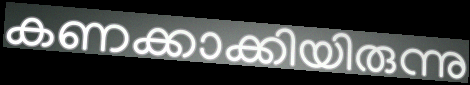
കണക്കാക്കിയിരുന്നു